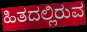
ಹಿತದಲ್ಲಿರುವ